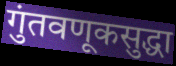
गुंतवणूकसुद्धा